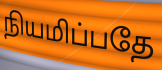
நியமிப்பதே